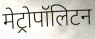
मेट्रोपॉलिटन